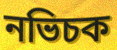
নভিচক